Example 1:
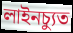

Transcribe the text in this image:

লাইনচ্যুত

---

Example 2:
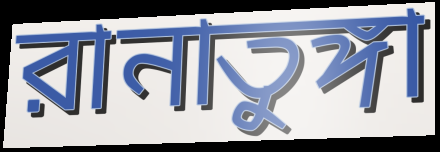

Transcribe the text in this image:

রানাতুঙ্গা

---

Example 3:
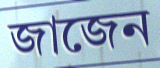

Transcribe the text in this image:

জাজেন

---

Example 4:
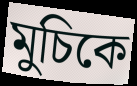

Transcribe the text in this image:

মুচিকে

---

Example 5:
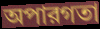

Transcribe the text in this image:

অপারগতা